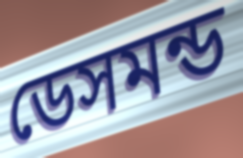
ডেসমন্ড